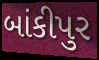
બાંકીપુર